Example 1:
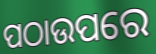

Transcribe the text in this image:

ପଠାଉପରେ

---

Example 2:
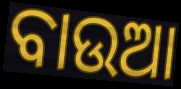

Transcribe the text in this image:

ବାଉଆ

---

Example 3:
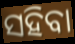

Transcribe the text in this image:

ସହିବା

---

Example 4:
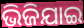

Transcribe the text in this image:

ଭିଜିଯାଇ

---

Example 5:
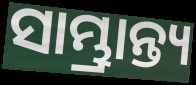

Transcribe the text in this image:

ସାମ୍ଭ୍ରାନ୍ତ୍ୟ